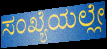
ಸಂಖ್ಯೆಯಲ್ಲೇ